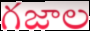
గజాల